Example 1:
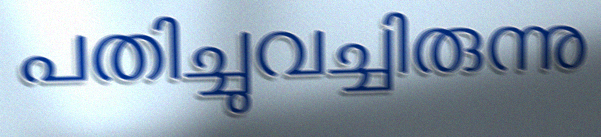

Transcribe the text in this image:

പതിച്ചുവച്ചിരുന്നു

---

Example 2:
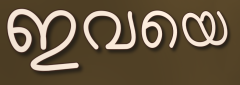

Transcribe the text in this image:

ഇവയെ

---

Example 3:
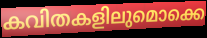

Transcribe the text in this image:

കവിതകളിലുമൊക്കെ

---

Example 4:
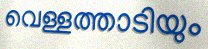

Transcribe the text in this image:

വെള്ളത്താടിയും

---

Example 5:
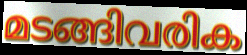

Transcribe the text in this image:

മടങ്ങിവരിക